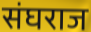
संघराज